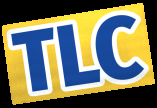
TLC